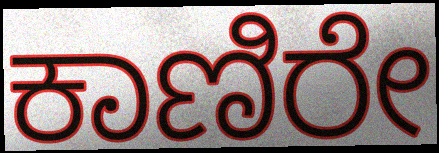
ಕಾಣಿರೇ